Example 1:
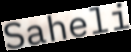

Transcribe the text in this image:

Saheli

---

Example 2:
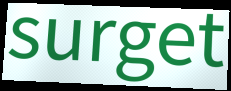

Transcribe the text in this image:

surget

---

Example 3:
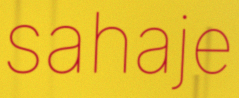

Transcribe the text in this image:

sahaje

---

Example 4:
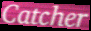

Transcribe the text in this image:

Catcher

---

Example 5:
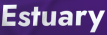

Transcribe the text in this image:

Estuary